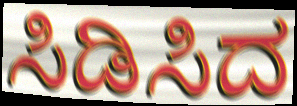
ಸಿಡಿಸಿದ